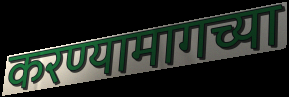
करण्यामागच्या